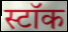
स्टॉक